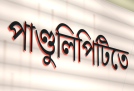
পাণ্ডুলিপিটিতে